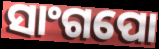
ସାଂଗପୋ